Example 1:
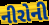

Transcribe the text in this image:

નીરોની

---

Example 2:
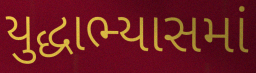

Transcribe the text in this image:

યુદ્ધાભ્યાસમાં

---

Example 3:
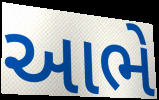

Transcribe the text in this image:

આભે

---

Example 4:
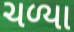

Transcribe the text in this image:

ચળ્યા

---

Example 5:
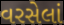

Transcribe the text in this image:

વરસેલાં